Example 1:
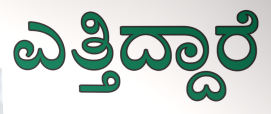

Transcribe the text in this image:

ಎತ್ತಿದ್ದಾರೆ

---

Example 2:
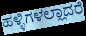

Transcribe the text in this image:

ಹಳ್ಳಿಗಳಲ್ಲಾದರೆ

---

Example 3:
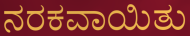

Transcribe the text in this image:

ನರಕವಾಯಿತು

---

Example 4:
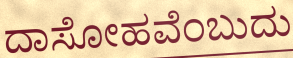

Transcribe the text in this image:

ದಾಸೋಹವೆಂಬುದು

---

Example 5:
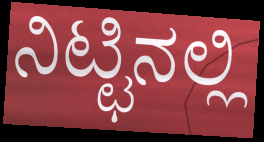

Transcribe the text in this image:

ನಿಟ್ಟಿನಲ್ಲಿ